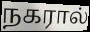
நகரால்